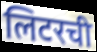
लिटरची